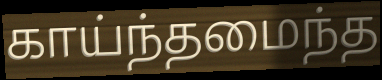
காய்ந்தமைந்த